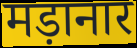
मड़ानार